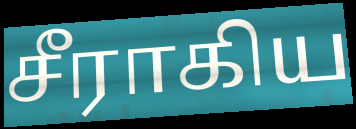
சீராகிய